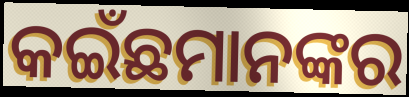
କଇଁଛମାନଙ୍କର